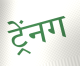
ट्र्रेंनग